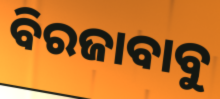
ବିରଜାବାବୁ